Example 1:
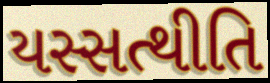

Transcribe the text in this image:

યસ્સત્થીતિ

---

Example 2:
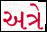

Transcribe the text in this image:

અત્રે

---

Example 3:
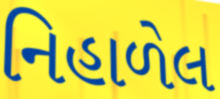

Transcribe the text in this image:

નિહાળેલ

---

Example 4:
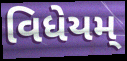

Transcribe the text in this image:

વિધેયમ્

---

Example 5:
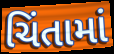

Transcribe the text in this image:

ચિંતામાં